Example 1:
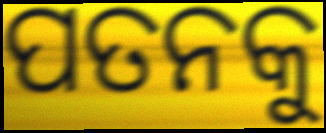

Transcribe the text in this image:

ପତନକୁ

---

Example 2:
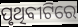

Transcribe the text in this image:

ପୃଥିବୀଟିରେ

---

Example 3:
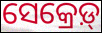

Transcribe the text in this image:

ସେକ୍ରେଡ଼୍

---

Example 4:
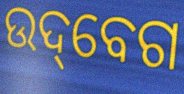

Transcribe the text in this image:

ଉଦ୍‌ବେଗ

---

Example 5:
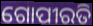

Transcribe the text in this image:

ଗୋପୀରତି